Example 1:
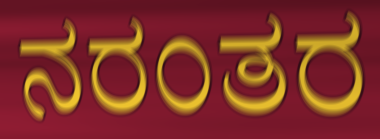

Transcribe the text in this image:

ನರಂತರ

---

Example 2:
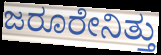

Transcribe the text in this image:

ಜರೂರೇನಿತ್ತು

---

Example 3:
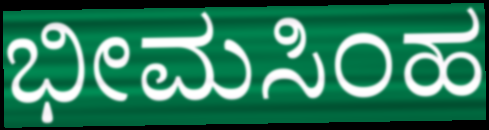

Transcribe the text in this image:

ಭೀಮಸಿಂಹ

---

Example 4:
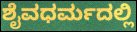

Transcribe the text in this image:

ಶೈವಧರ್ಮದಲ್ಲಿ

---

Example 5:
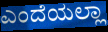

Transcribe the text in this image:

ಎಂದೆಯಲ್ಲಾ